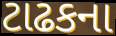
ટાઢકના